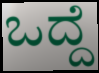
ಒದ್ದೆ